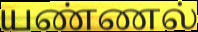
யண்ணல்